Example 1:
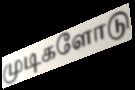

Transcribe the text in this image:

முடிகளோடு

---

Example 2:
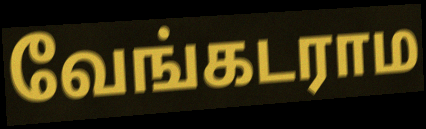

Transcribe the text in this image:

வேங்கடராம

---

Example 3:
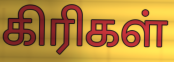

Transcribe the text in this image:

கிரிகள்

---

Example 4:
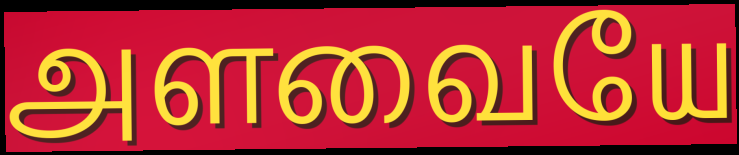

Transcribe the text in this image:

அளவையே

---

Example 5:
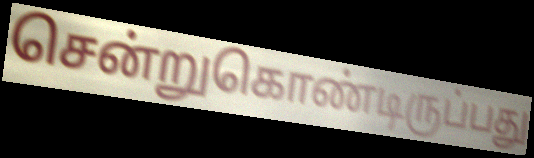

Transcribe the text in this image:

சென்றுகொண்டிருப்பது